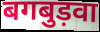
बगबुड़वा